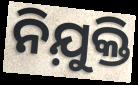
ନିଯ଼ୁକ୍ତି